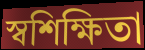
স্বশিক্ষিতা